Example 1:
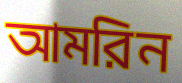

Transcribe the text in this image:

আমরিন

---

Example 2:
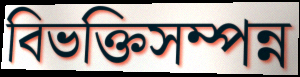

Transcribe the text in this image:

বিভক্তিসম্পন্ন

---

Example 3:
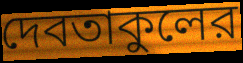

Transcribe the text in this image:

দেবতাকুলের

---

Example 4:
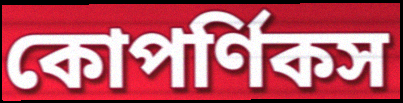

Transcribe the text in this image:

কোপর্ণিকস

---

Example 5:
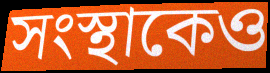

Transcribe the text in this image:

সংস্থাকেও